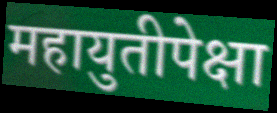
महायुतीपेक्षा